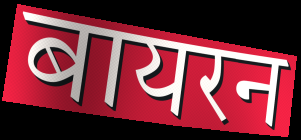
बायरन